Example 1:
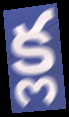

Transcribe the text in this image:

క్ల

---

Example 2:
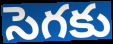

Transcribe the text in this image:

సెగకు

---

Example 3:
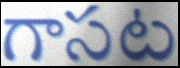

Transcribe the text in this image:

గాసట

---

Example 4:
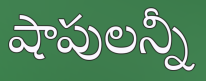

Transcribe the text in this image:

షాపులన్నీ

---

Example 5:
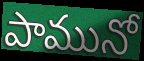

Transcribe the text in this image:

పామునో